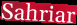
Sahriar